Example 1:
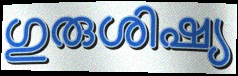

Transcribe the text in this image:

ഗുരുശിഷ്യ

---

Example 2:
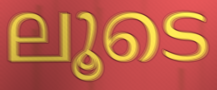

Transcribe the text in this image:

ലൂടെ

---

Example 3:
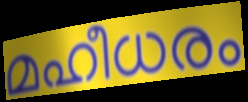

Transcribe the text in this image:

മഹീധരം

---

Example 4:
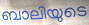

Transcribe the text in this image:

ബാലിയുടെ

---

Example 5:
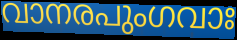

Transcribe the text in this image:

വാനരപുംഗവാഃ